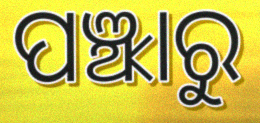
ପଞ୍ଝାରୁ